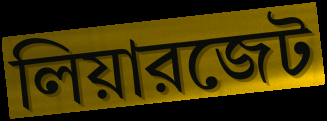
লিয়ারজেট